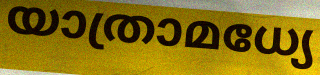
യാത്രാമധ്യേ